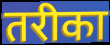
तरीका